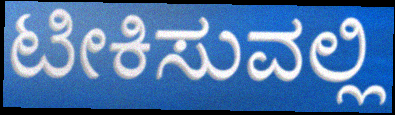
ಟೀಕಿಸುವಲ್ಲಿ